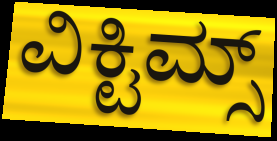
ವಿಕ್ಟಿಮ್ಸ್